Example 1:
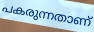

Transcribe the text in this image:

പകരുന്നതാണ്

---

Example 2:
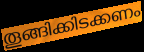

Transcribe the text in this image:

തൂങ്ങിക്കിടക്കണം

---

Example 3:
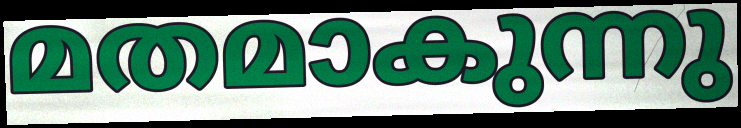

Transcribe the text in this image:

മതമാകുന്നു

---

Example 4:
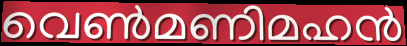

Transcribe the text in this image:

വെൺമണിമഹൻ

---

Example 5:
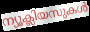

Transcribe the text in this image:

ന്യൂക്ലിയസുകൾ